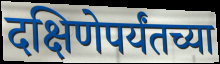
दक्षिणेपर्यंतच्या